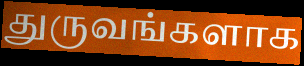
துருவங்களாக